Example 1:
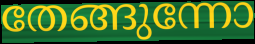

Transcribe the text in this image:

തേങ്ങുന്നോ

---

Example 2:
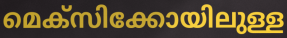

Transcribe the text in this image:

മെക്സിക്കോയിലുള്ള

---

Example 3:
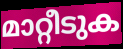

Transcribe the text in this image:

മാറ്റീടുക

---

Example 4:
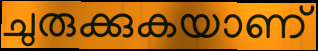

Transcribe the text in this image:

ചുരുക്കുകയാണ്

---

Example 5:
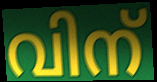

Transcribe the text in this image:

വിന്